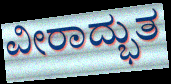
ವೀರಾದ್ಭುತ